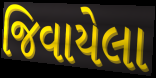
જિવાયેલા